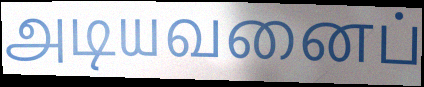
அடியவனைப்